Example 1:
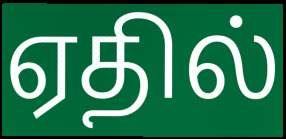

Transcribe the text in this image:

ஏதில்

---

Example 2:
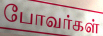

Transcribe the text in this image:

போவர்கள்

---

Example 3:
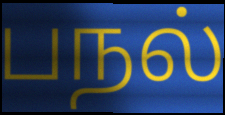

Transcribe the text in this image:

பநல்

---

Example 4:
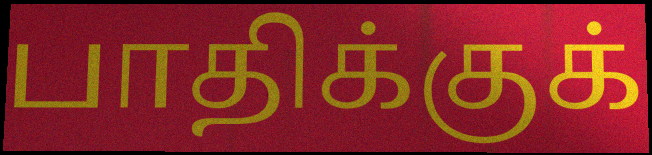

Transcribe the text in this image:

பாதிக்குக்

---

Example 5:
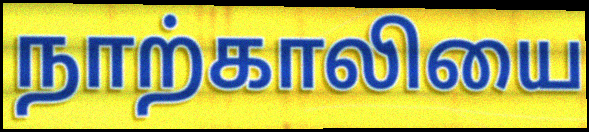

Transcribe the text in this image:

நாற்காலியை